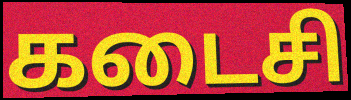
கடைசி